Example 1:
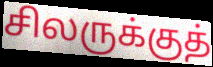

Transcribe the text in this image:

சிலருக்குத்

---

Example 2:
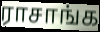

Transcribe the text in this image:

ராசாங்க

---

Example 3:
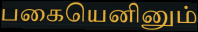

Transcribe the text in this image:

பகையெனினும்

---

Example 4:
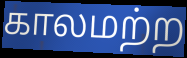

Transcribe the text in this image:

காலமற்ற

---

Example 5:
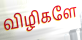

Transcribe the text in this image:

விழிகளே